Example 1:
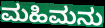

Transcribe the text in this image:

ಮಹಿಮನು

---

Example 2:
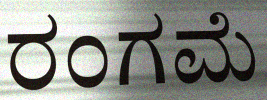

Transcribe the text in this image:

ರಂಗಮೆ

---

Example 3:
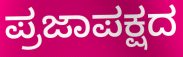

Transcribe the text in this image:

ಪ್ರಜಾಪಕ್ಷದ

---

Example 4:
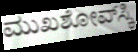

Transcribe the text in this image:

ಮುಖಶೋವ್‌ಸ್ಕಿ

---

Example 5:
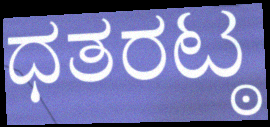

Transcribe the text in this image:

ಧತರಟ್ಠ